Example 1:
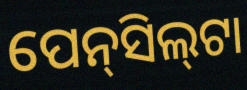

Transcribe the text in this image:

ପେନ୍‌ସିଲ୍‍ଟା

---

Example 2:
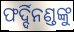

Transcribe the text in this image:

ଫର୍ଦ୍ଦିନଣ୍ଡଙ୍କୁ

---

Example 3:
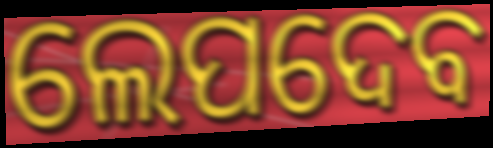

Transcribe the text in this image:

ଲେପଦେବ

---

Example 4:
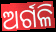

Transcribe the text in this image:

ଅର୍ଗଳି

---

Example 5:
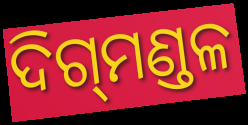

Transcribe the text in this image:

ଦିଗ୍‍ମଣ୍ଡଳ